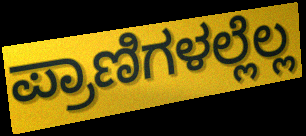
ಪ್ರಾಣಿಗಳಲ್ಲೆಲ್ಲ